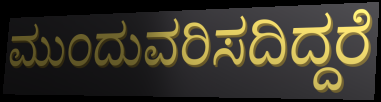
ಮುಂದುವರಿಸದಿದ್ದರೆ